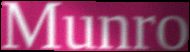
Munro